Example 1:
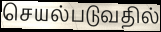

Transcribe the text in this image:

செயல்படுவதில்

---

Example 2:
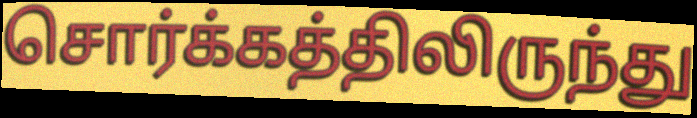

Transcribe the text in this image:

சொர்க்கத்திலிருந்து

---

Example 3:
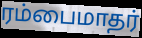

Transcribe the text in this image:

ரம்பைமாதர்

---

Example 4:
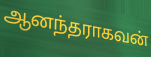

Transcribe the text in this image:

ஆனந்தராகவன்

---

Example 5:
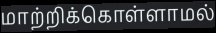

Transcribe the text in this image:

மாற்றிக்கொள்ளாமல்